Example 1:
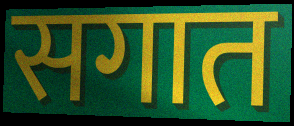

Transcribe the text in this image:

सगात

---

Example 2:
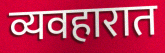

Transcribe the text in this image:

व्यवहारात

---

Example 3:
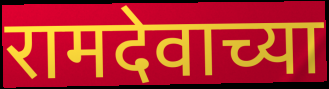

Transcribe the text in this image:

रामदेवाच्या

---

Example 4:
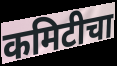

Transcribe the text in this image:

कमिटीचा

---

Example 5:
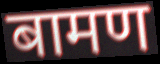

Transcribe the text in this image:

बामण